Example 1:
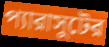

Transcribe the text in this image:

প্যারাসুটের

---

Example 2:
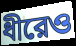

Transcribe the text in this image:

ধীরেও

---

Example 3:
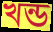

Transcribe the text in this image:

খন্ড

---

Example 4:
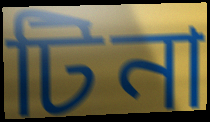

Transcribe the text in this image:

টিনা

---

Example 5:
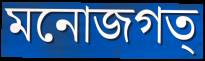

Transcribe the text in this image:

মনোজগত্